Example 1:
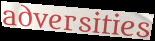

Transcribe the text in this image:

adversities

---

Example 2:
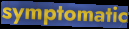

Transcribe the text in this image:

symptomatic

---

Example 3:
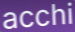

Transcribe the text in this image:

acchi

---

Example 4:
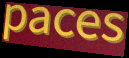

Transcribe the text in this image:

paces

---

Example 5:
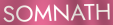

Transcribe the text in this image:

SOMNATH